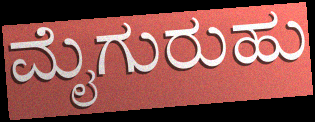
ಮೈಗುರುಹು